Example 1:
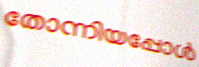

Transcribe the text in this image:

തോന്നിയപ്പോൾ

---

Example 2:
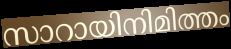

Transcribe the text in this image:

സാറായിനിമിത്തം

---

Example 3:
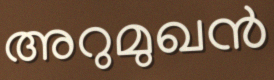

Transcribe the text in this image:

അറുമുഖൻ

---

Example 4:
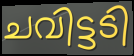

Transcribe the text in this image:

ചവിട്ടടി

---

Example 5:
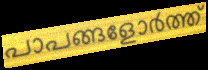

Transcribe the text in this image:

പാപങ്ങളോർത്ത്